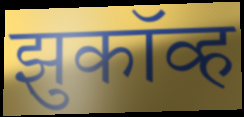
झुकॉव्ह